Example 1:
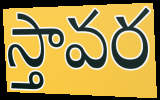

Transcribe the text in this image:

స్తావర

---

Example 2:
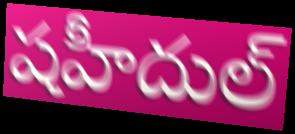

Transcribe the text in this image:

షహీదుల్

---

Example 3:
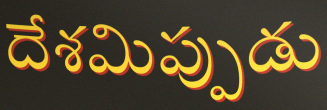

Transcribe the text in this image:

దేశమిప్పుడు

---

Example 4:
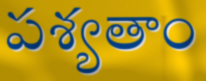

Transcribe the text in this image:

పశ్యతాం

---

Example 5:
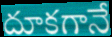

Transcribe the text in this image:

దూకగానే